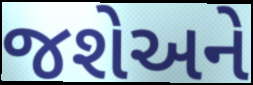
જશેઅને